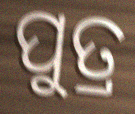
ପୁତ୍ର